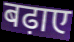
बढ़ाए